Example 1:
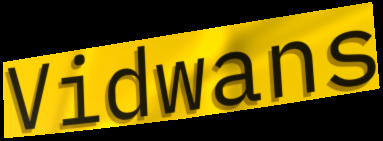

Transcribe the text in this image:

Vidwans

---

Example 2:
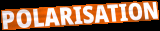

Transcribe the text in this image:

POLARISATION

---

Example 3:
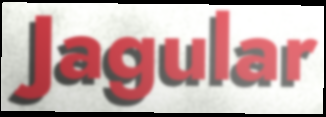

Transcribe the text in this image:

Jagular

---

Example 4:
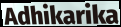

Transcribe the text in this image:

Adhikarika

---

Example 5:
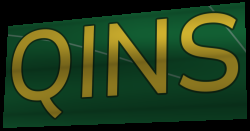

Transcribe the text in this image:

QINS